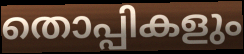
തൊപ്പികളും